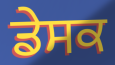
ਡੇਸਕ